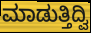
ಮಾಡುತ್ತಿದ್ವಿ